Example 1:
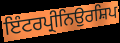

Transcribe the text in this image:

ਇੰਟਰਪ੍ਰੀਨਿਉਰਸ਼ਿਪ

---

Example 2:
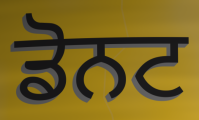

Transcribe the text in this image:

ਡੋਨਟ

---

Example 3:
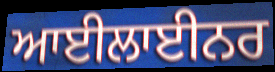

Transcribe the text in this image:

ਆਈਲਾਈਨਰ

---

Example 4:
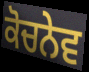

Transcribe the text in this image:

ਕੋਚਨੇਵ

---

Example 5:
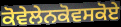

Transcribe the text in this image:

ਕੋਵੇਲੇਨਕੋਵਸਕੋਏ